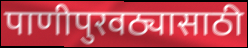
पाणीपुरवठ्यासाठी